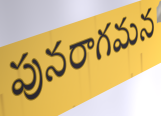
పునరాగమన